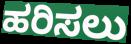
ಹರಿಸಲು